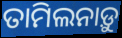
ତାମିଲନାଡ଼ୁ